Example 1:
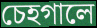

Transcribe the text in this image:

চেহগালে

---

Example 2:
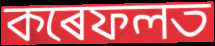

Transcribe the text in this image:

কৰেফলত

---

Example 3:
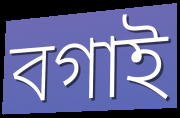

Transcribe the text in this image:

বগাই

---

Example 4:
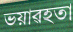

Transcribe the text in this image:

ভয়াৱহতা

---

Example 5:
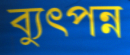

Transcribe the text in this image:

ব্যুৎপন্ন